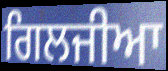
ਗਿਲਜੀਆ